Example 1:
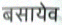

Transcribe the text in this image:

बसायेव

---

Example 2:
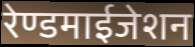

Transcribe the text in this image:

रेण्डमाईजेशन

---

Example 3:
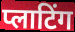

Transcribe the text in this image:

प्लाटिंग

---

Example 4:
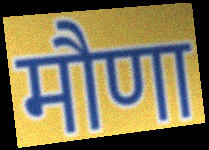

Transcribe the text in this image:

मौणा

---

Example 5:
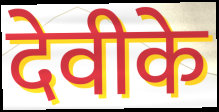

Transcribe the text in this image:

देवीके